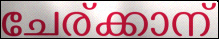
ചേര്ക്കാന്